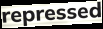
repressed